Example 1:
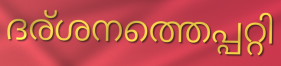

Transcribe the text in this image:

ദര്ശനത്തെപ്പറ്റി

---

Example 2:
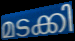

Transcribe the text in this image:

മടക്കി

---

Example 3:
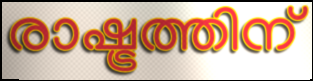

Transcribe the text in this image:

രാഷ്ട്രത്തിന്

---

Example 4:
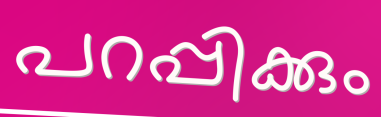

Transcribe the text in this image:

പറപ്പിക്കും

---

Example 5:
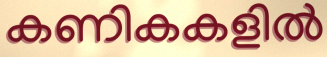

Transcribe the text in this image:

കണികകളിൽ